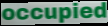
occupied